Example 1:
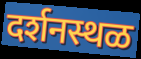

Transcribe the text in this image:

दर्शनस्थळ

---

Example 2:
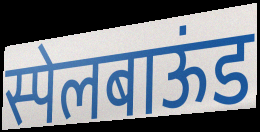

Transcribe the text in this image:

स्पेलबाऊंड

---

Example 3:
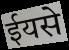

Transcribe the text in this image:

ईयसे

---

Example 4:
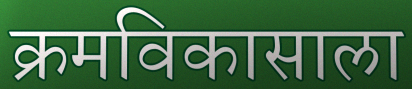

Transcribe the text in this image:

क्रमविकासाला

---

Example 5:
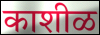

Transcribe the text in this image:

काशीळ